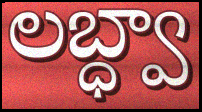
లబ్ధ్వా